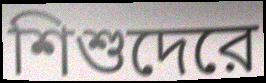
শিশুদেরে